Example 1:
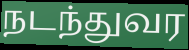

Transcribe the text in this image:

நடந்துவர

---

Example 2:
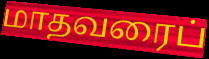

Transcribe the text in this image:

மாதவரைப்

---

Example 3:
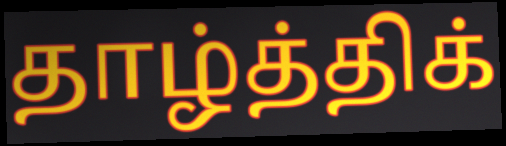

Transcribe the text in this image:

தாழ்த்திக்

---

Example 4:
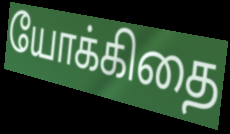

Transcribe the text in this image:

யோக்கிதை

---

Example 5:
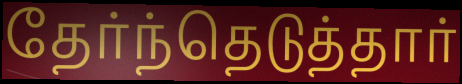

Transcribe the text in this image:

தேர்ந்தெடுத்தார்